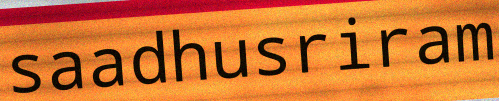
saadhusriram